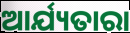
ଆର୍ଯ୍ୟତାରା